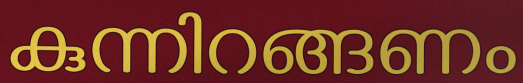
കുന്നിറങ്ങണം